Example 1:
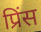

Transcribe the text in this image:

प्रिंस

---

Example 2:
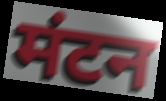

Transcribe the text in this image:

मंटन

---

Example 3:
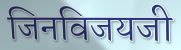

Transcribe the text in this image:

जिनविजयजी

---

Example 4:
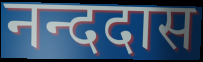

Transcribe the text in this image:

नन्ददास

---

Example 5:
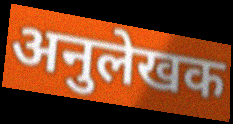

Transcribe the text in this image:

अनुलेखक